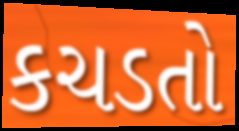
કચડતો